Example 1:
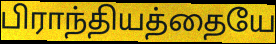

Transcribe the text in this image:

பிராந்தியத்தையே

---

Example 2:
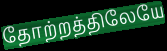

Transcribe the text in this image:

தோற்றத்திலேயே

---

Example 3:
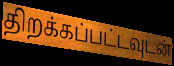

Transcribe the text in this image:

திறக்கப்பட்டவுடன்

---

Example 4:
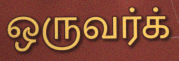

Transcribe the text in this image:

ஒருவர்க்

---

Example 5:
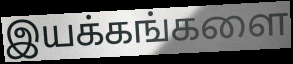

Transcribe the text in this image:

இயக்கங்களை